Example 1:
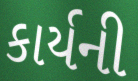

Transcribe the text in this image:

કાર્યની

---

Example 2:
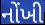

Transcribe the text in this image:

નોંખી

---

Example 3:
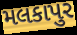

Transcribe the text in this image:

મલકાપુર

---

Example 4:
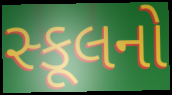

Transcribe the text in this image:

સ્કૂલનો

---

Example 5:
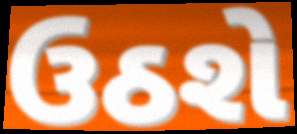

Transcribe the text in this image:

ઉઠશે